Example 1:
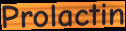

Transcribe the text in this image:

Prolactin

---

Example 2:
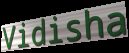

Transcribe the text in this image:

Vidisha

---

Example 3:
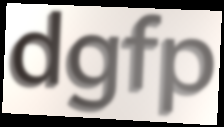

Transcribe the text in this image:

dgfp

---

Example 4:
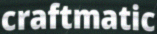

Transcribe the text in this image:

craftmatic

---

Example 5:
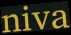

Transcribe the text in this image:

niva